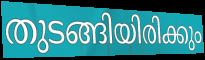
തുടങ്ങിയിരിക്കും